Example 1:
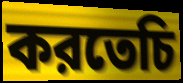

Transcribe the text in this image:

করতেচি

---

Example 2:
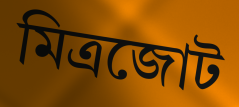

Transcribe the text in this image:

মিত্রজোট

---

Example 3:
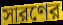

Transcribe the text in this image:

সারণের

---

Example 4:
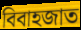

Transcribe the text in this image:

বিবাহজাত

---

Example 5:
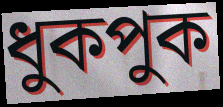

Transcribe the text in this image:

ধুকপুক